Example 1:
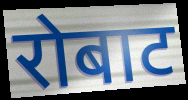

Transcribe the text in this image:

रोबाट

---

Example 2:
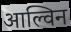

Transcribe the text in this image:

आल्विन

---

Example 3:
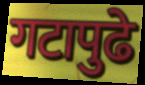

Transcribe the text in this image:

गटापुढे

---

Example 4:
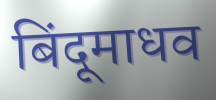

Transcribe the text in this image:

बिंदूमाधव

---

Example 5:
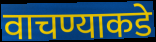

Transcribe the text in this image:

वाचण्याकडे